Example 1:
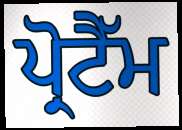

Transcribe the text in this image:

ਪ੍ਰੋਟੈੱਮ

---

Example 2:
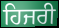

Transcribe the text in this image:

ਹਿਜਰੀ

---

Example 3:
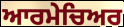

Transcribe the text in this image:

ਆਰਮੇਚਿਅਰ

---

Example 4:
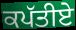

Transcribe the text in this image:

ਕਪੱਤੀਏ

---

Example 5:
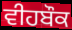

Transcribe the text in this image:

ਵੀਹਬੌਕ